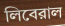
লিবেরাল